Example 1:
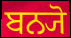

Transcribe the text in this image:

ਬਨ੍ਯੋ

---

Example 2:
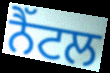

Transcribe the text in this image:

ਨੈੱਟਲ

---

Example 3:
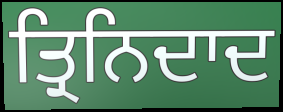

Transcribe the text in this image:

ਤ੍ਰਿਨਿਦਾਦ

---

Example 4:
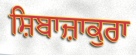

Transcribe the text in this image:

ਸ਼ਿਬਾਜ਼ਾਕੁਰਾ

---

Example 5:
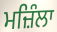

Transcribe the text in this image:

ਮਜ਼ਿੰਲਾ